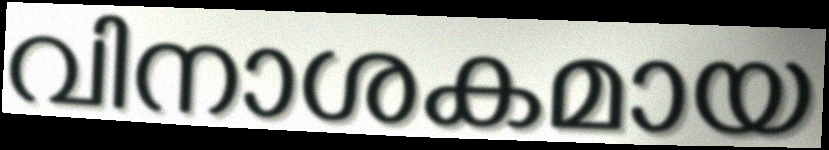
വിനാശകമായ